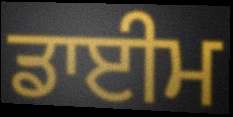
ਡਾਈਮ